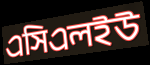
এসিএলইউ